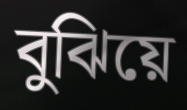
বুঝিয়ে